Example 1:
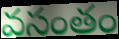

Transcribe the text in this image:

వసంతం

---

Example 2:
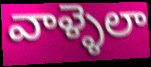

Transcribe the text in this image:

వాళ్ళెలా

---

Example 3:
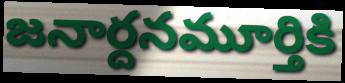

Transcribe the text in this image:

జనార్దనమూర్తికి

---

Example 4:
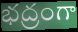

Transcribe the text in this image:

భద్రంగా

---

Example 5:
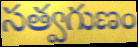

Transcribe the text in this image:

సత్వగుణం